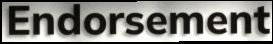
Endorsement